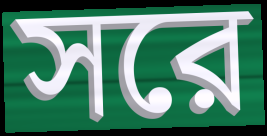
সরে